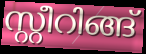
സ്റ്റീറിങ്ങ്